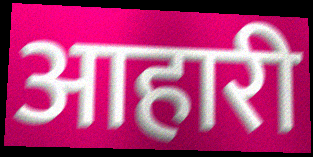
आहारी